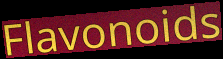
Flavonoids